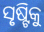
ସୃଷ୍ଟିକୁ